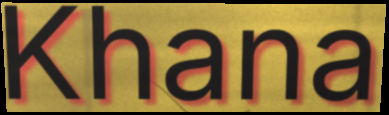
Khana